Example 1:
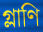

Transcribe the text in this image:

গ্লাণি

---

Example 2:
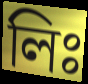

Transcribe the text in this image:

লিঃ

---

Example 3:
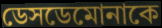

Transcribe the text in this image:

ডেসডেমোনাকে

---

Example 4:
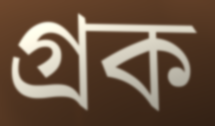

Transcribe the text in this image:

গ্রক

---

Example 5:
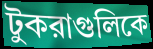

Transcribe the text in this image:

টুকরাগুলিকে